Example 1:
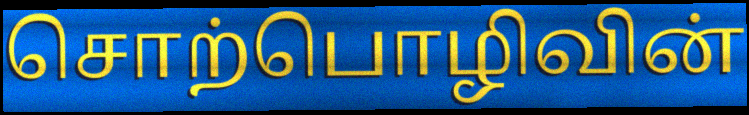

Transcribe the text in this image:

சொற்பொழிவின்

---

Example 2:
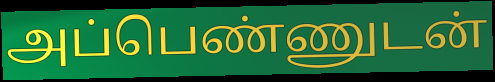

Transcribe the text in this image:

அப்பெண்ணுடன்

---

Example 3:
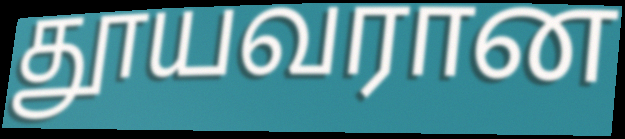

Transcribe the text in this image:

தூயவரான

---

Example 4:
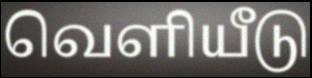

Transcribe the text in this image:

வெளியீடு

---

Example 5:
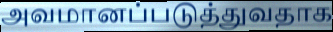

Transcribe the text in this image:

அவமானப்படுத்துவதாக